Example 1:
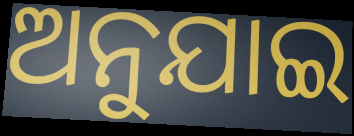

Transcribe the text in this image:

ଅନୁଯାଇ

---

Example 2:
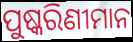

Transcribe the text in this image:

ପୁଷ୍କରିଣୀମାନ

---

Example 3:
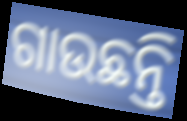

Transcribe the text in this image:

ଗାଉଛନ୍ତି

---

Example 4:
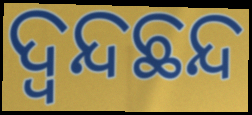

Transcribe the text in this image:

ଦ୍ୱନ୍ଦଛନ୍ଦ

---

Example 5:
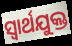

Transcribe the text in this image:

ସ୍ୱାର୍ଥଯୁକ୍ତ